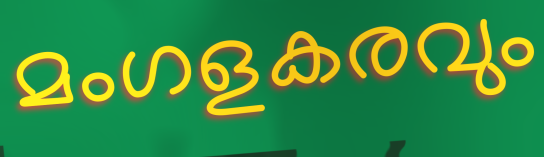
മംഗളകരവും